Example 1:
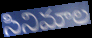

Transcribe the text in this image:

సినిమాల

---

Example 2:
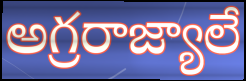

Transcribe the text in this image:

అగ్రరాజ్యాలే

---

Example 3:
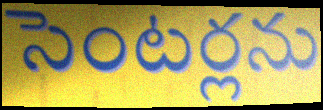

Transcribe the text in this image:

సెంటర్లను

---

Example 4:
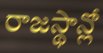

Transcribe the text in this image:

రాజస్థాన్లో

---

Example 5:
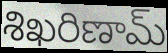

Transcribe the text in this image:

శిఖరిణామ్